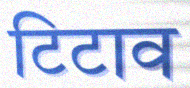
टिटाव